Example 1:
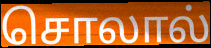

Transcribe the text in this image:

சொலால்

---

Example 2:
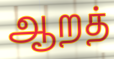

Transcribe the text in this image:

ஆறத்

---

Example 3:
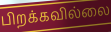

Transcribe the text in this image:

பிறக்கவில்லை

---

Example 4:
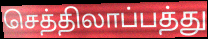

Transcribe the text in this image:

செத்திலாப்பத்து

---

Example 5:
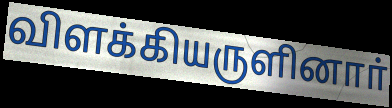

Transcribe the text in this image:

விளக்கியருளினார்